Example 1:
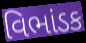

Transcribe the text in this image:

વિભાંડક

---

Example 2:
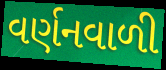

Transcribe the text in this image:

વર્ણનવાળી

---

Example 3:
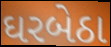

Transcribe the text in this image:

ઘરબેઠા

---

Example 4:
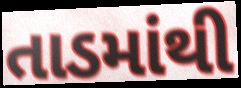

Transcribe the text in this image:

તાડમાંથી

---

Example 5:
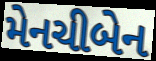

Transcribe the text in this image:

મેનચીબેન